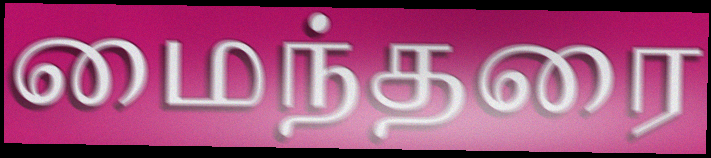
மைந்தரை